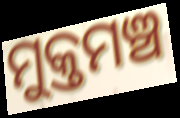
ମୁକ୍ତମଞ୍ଚ